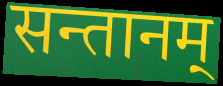
सन्तानम्